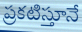
ప్రకటిస్తూనే